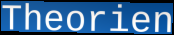
Theorien